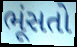
ભૂંસતો